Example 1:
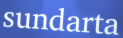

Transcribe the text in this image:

sundarta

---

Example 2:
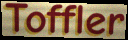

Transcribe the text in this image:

Toffler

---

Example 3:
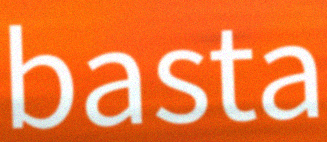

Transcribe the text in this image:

basta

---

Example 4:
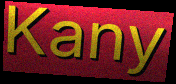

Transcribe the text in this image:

Kany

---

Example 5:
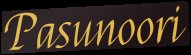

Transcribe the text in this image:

Pasunoori